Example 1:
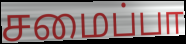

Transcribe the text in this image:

சமைப்பா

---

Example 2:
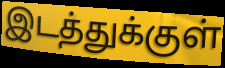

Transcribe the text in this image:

இடத்துக்குள்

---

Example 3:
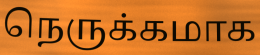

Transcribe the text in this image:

நெருக்கமாக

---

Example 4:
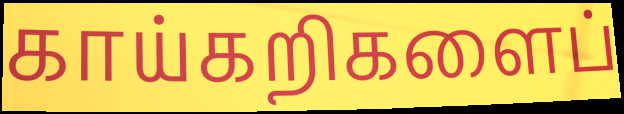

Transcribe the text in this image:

காய்கறிகளைப்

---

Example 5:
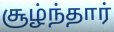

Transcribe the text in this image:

சூழ்ந்தார்